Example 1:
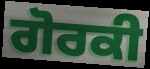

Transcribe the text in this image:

ਗੋਰਕੀ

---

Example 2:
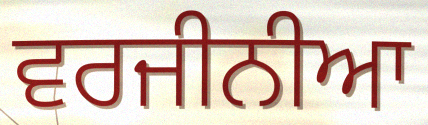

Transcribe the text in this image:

ਵਰਜੀਨੀਆ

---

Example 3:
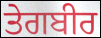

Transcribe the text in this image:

ਤੇਗਬੀਰ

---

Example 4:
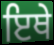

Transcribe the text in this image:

ਇਥੇ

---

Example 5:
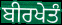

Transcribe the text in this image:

ਬੀਰਖੇਤੰ